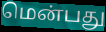
மென்பது